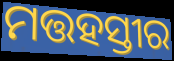
ମତ୍ତହସ୍ତୀର